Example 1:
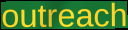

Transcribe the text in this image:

outreach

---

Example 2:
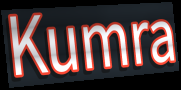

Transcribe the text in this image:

Kumra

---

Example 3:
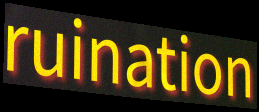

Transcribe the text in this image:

ruination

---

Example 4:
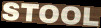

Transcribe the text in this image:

STOOL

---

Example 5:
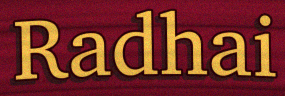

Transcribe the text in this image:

Radhai